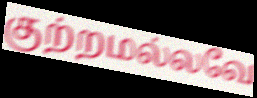
குற்றமல்லவே